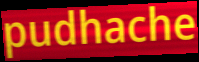
pudhache